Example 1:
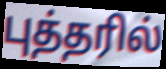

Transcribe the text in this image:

புத்தரில்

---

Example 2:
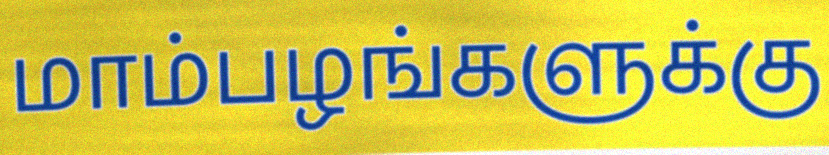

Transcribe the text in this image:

மாம்பழங்களுக்கு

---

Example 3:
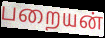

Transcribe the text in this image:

பறையன்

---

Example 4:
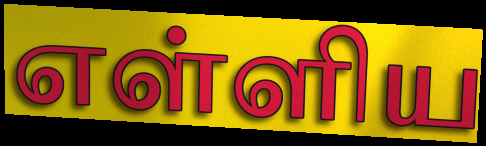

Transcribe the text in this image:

எள்ளிய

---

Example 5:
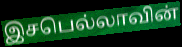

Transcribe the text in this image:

இசபெல்லாவின்